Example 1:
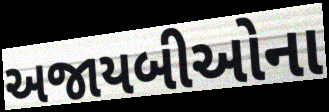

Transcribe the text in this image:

અજાયબીઓના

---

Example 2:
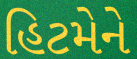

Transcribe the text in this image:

હિટમેને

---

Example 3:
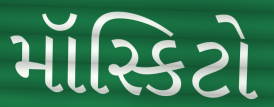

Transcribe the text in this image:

મૉસ્કિટો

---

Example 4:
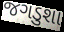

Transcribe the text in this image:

જગડુશા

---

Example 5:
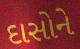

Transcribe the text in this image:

દાસોને